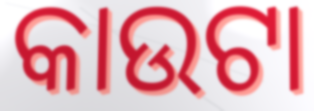
କାଉଟା